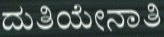
ದುತಿಯೇನಾತಿ